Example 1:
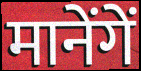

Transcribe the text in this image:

मानेंगें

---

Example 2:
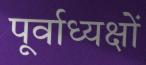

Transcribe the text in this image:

पूर्वाध्यक्षों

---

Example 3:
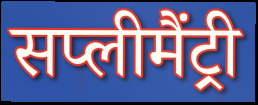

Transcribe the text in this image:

सप्लीमैंट्री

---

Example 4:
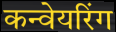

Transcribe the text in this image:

कन्वेयरिंग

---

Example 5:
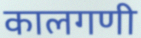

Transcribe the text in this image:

कालगणी